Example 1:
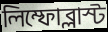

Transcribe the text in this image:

লিম্ফোব্লাস্ট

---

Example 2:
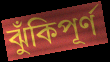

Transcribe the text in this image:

ঝুঁকিপূর্ণ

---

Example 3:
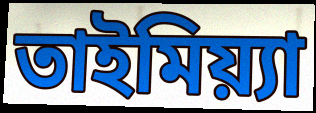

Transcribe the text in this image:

তাইমিয়্যা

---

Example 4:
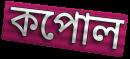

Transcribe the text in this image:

কপোল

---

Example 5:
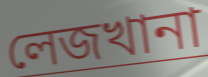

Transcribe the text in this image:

লেজখানা